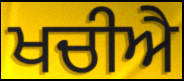
ਖਚੀਐ